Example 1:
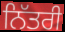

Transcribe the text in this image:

ਨਿੱਤਰੀ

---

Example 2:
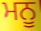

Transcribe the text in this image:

ਮਨੂ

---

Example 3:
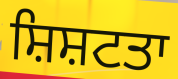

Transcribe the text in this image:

ਸ਼ਿਸ਼ਟਤਾ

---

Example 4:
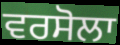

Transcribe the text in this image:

ਵਰਸੋਲਾ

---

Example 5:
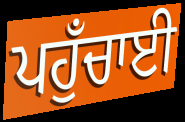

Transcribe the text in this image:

ਪਹੁਁਚਾਈ